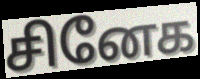
சினேக